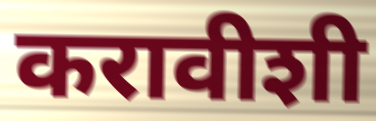
करावीशी